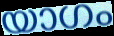
യാഗം